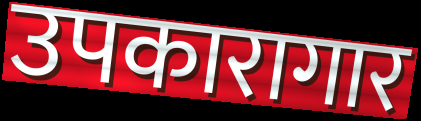
उपकारागार